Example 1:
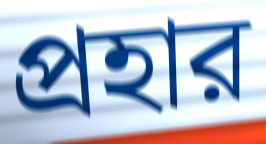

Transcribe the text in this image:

প্রহার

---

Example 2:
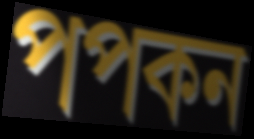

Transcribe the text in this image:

পপকন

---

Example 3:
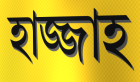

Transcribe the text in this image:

হাজ্জাহ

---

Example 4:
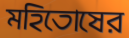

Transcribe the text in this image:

মহিতোষের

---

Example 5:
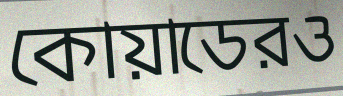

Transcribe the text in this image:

কোয়াডেরও